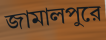
জামালপুরে